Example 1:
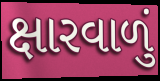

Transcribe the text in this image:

ક્ષારવાળું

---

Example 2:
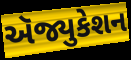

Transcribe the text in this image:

ઍજ્યુકેશન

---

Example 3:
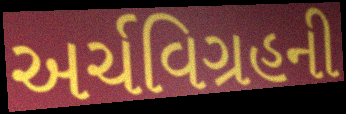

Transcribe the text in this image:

અર્ચવિગ્રહની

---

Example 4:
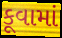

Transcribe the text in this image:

કૂવામાં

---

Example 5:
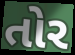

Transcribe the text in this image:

તોર